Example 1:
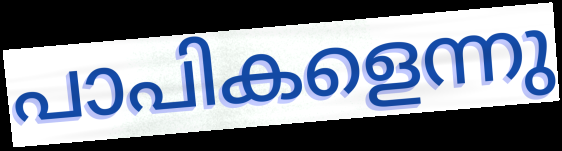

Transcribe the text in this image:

പാപികളെന്നു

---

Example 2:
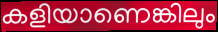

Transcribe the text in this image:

കളിയാണെങ്കിലും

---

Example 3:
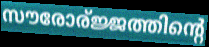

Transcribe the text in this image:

സൗരോര്ജ്ജത്തിന്റെ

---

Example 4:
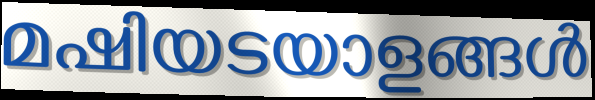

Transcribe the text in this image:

മഷിയടയാളങ്ങൾ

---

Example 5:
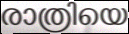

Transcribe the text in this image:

രാത്രിയെ